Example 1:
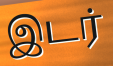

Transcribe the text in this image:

இடர்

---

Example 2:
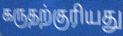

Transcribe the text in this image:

கருதற்குரியது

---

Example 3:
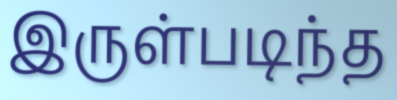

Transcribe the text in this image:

இருள்படிந்த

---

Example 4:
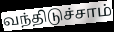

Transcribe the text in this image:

வந்திடுச்சாம்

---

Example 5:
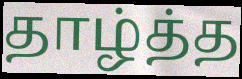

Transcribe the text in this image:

தாழ்த்த